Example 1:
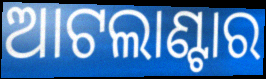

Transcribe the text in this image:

ଆଟଲାଣ୍ଟାର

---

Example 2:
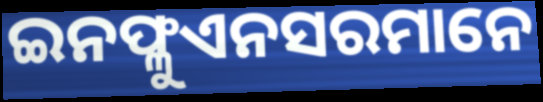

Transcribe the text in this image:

ଇନଫ୍ଳୁଏନସରମାନେ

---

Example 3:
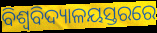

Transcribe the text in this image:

ବିଶ୍ୱବିଦ୍ୟାଳୟସ୍ତରରେ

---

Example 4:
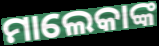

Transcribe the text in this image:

ମାଲେକାଙ୍କ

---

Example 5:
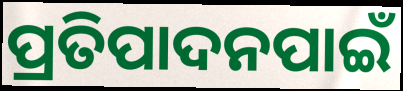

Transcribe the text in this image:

ପ୍ରତିପାଦନପାଇଁ